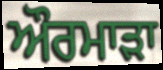
ਔਰਮਾੜਾ